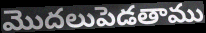
మొదలుపెడతాము